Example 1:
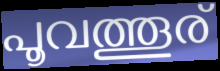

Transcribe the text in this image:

പൂവത്തൂര്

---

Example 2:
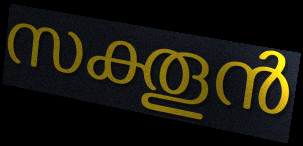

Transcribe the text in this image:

സക്തൂൻ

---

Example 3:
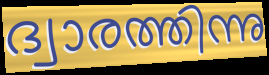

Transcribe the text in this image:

ദ്വാരത്തിന്നു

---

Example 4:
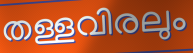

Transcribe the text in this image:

തള്ളവിരലും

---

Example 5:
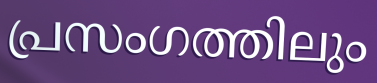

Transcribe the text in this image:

പ്രസംഗത്തിലും